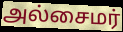
அல்சைமர்